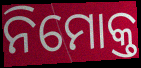
ନିମୋକ୍ତ